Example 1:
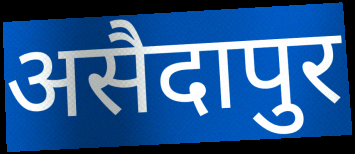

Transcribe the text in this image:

असैदापुर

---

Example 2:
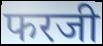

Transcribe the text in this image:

फरजी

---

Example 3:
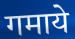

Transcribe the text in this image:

गमाये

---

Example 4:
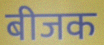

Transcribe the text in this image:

बीजक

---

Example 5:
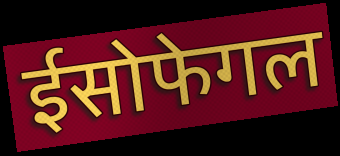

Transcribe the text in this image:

ईसोफेगल